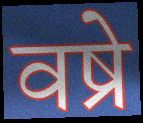
वष्रे